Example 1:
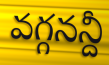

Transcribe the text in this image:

వగ్గనన్దీ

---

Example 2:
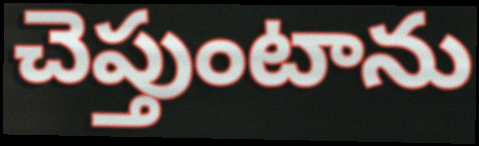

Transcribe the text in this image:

చెప్తుంటాను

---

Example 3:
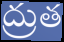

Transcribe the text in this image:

ద్రుత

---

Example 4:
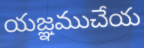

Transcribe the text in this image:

యజ్ఞముచేయ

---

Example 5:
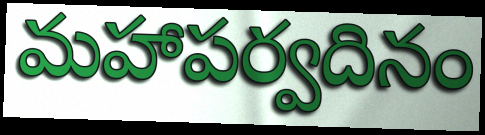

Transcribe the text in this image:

మహాపర్వదినం